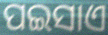
ପଇସାଏ